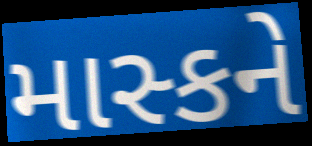
માસ્કને